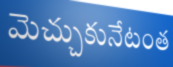
మెచ్చుకునేటంత